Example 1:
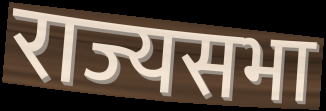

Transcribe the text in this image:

राज्यसभा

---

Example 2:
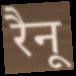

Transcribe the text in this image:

रैनू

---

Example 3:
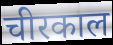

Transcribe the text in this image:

चीरकाल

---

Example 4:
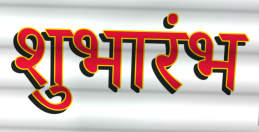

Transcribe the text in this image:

शुभारंभ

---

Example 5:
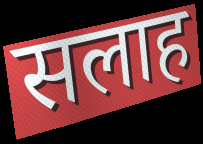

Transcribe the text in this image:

सलाह